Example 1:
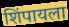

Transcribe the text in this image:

शिंपायला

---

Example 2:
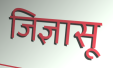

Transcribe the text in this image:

जिज्ञासू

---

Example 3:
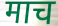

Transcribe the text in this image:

माच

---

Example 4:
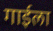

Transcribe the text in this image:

गाईला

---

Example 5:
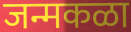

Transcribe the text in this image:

जन्मकळा